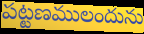
పట్టణములందును